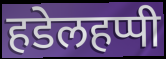
हडेलहप्पी